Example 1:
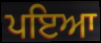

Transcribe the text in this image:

ਪਇਆ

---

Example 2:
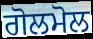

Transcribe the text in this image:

ਗੋਲਮੋਲ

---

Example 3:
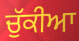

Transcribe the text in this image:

ਚੁੱਕੀਆ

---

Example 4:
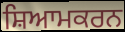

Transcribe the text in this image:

ਸ਼ਿਆਮਕਰਨ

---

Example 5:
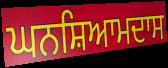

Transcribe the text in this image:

ਘਨਸ਼ਿਆਮਦਾਸ